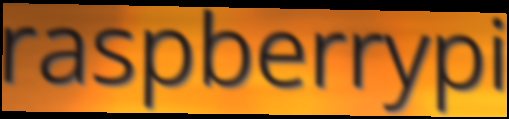
raspberrypi